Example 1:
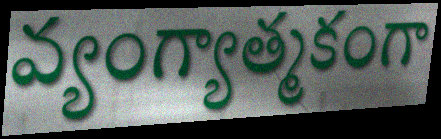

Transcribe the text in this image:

వ్యంగ్యాత్మకంగా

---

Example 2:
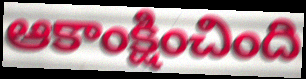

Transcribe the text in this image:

ఆకాంక్షించింది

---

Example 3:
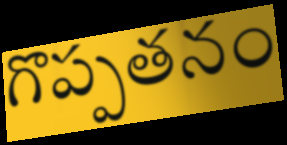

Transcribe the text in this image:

గొప్పతనం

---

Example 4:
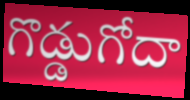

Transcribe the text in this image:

గొడ్డుగోదా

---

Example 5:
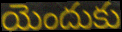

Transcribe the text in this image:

యెందుకు